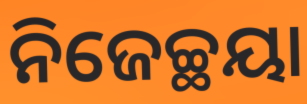
ନିଜେଚ୍ଛୟା